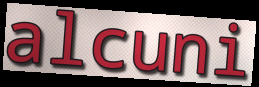
alcuni